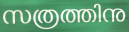
സത്രത്തിനു